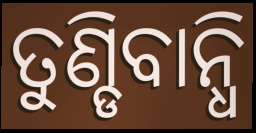
ତୁଣ୍ଡିବାନ୍ଧି